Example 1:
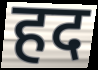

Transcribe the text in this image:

हद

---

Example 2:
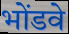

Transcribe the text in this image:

भोंडवे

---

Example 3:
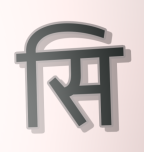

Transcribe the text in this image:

सि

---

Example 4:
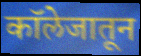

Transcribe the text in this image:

कॉलेजातून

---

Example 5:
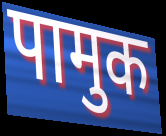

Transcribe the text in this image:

पामुक